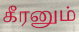
கீரனும்